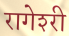
रागेश्री